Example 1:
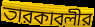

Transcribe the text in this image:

তারকাবলীর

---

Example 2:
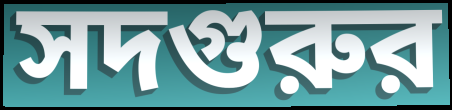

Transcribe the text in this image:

সদগুরুর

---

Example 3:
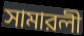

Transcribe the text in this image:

সামারলী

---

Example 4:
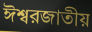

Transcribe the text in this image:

ঈশ্বরজাতীয়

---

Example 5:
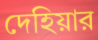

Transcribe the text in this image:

দেহিয়ার